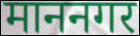
माननगर